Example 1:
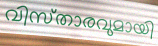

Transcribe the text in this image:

വിസ്‌താരവുമായി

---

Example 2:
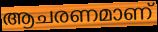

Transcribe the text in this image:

ആചരണമാണ്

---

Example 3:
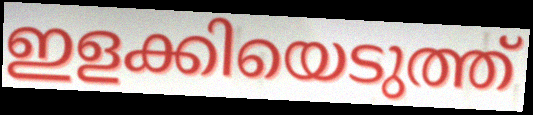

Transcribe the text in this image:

ഇളക്കിയെടുത്ത്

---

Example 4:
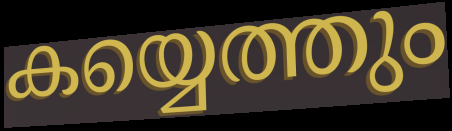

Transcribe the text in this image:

കയ്യെത്തും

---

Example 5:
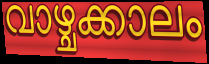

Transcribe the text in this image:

വാഴ്ചക്കാലം